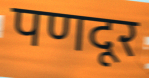
पणदूर